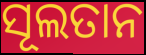
ସୂଲତାନ